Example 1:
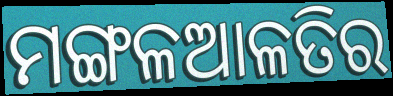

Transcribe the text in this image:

ମଙ୍ଗଳଆଳତିର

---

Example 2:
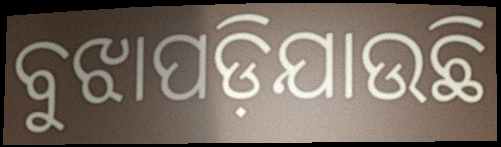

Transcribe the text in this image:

ବୁଝାପଡ଼ିଯାଉଛି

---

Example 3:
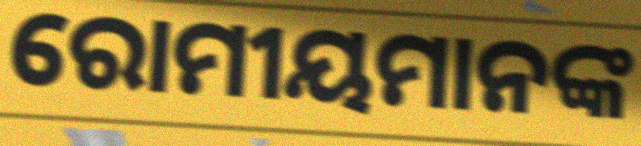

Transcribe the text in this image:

ରୋମୀୟମାନଙ୍କ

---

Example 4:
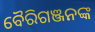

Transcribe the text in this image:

ବୈରିଗଞ୍ଜନଙ୍କ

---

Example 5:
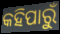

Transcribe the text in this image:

କହିପାରୁଁ